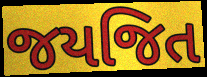
જયજિત